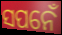
ସପନେଁ